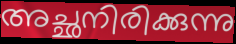
അച്ഛനിരിക്കുന്നു